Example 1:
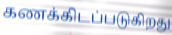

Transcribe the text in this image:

கணக்கிடப்படுகிறது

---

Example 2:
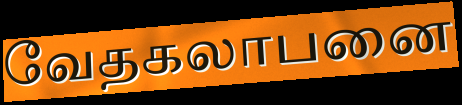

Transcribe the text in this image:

வேதகலாபனை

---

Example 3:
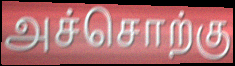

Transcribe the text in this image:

அச்சொற்கு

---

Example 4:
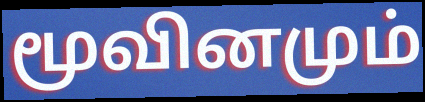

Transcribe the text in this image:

மூவினமும்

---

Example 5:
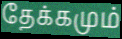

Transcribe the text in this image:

தேக்கமும்